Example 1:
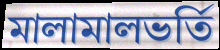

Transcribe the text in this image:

মালামালভর্তি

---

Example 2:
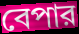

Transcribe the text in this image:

বেপার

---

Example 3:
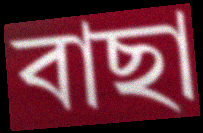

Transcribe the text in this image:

বাছা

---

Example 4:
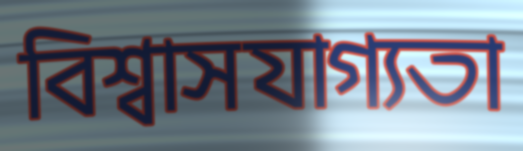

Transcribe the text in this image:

বিশ্বাসযাগ্যতা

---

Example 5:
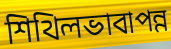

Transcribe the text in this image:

শিথিলভাবাপন্ন